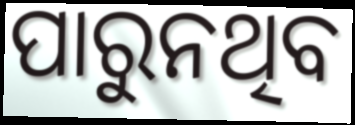
ପାରୁନଥିବ